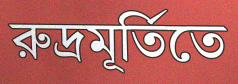
রুদ্রমূর্তিতে